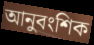
আনুবংশিক